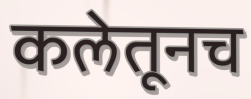
कलेतूनच